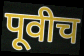
पूवीच